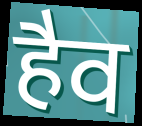
हैव